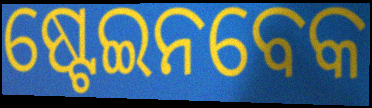
ଷ୍ଟେଇନବେକ